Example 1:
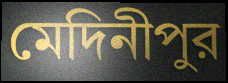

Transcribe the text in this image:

মেদিনীপুর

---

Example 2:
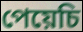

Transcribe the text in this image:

পেয়েচি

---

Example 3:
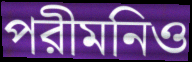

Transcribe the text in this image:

পরীমনিও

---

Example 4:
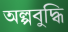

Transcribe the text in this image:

অল্পবুদ্ধি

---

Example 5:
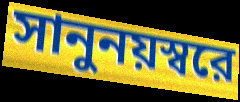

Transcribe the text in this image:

সানুনয়স্বরে